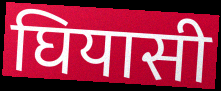
घियासी